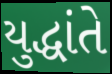
યુદ્ધાંતે